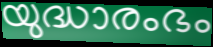
യുദ്ധാരംഭം